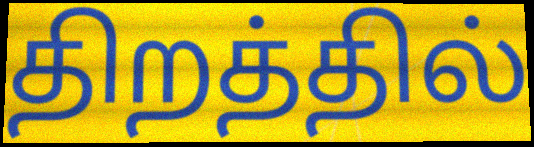
திறத்தில்